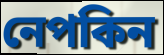
নেপকিন